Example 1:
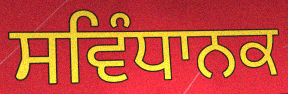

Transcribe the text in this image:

ਸਵਿੰਧਾਨਕ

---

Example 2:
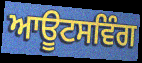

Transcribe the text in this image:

ਆਊਟਸਵਿੰਗ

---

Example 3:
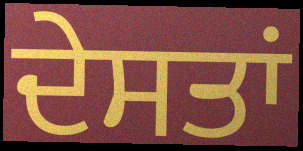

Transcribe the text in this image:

ਦੇਸਤਾਂ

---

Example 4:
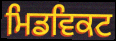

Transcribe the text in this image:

ਮਿਡਵਿਕਟ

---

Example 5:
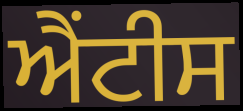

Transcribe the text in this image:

ਐਂਟੀਸ